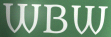
WBW